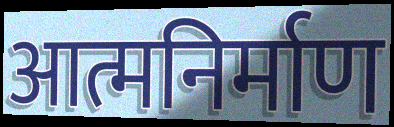
आत्मनिर्माण